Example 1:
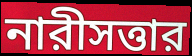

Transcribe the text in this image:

নারীসত্তার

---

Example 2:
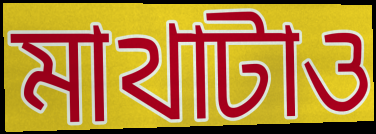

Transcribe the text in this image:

মাথাটাও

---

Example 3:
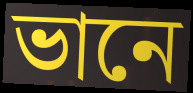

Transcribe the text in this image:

ভানে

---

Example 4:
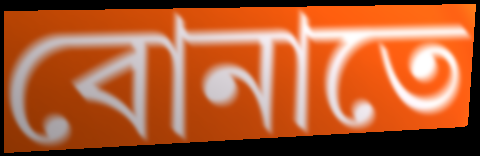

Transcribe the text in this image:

বোনাতে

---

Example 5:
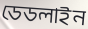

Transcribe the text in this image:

ডেডলাইন